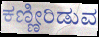
ಕಣ್ಣೀರಿಡುವ